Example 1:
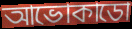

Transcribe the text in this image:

আভোকাডো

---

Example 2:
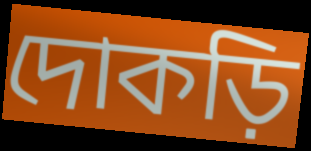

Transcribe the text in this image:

দোকড়ি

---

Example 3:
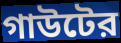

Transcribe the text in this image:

গাউটের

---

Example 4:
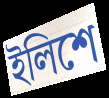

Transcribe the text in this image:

ইলিশে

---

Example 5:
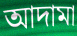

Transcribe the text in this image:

আদামা